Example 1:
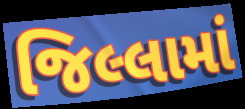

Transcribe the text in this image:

જિલ્લામાં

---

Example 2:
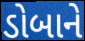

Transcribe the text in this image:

ડોબાને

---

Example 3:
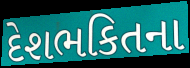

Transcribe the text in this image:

દેશભકિતના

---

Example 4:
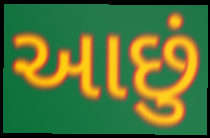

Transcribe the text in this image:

આછું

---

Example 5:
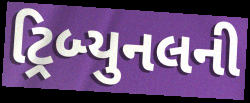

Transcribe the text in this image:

ટ્રિબ્યુનલની